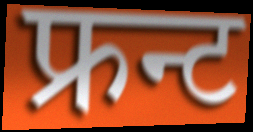
फ्रन्ट